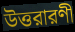
উত্তরারণী